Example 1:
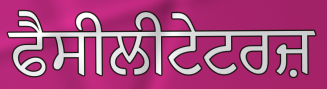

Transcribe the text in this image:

ਫੈਸੀਲੀਟੇਟਰਜ਼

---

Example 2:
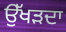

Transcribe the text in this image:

ਉੱਖੜਦਾ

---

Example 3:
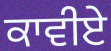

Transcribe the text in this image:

ਕਾਵੀਏ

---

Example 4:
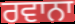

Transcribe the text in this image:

ਰਵਾਨਾ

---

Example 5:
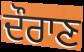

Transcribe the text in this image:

ਦੌਰਾਣ